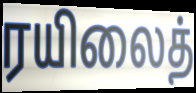
ரயிலைத்